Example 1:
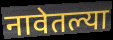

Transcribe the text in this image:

नावेतल्या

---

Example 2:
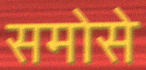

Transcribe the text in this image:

समोसे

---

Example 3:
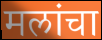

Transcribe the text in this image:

मलांचा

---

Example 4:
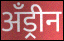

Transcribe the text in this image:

अँड्रीन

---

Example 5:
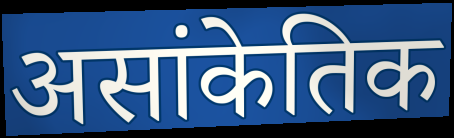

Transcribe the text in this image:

असांकेतिक